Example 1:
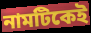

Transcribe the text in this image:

নামটিকেই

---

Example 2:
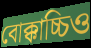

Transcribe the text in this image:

বোক্কাচ্চিও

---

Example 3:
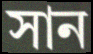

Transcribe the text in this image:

সান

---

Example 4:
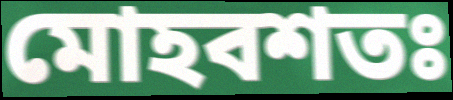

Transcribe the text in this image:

মোহবশতঃ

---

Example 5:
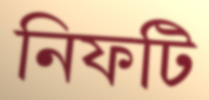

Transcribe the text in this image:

নিফটি